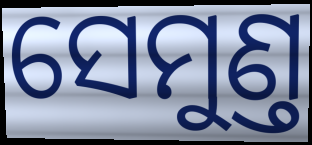
ସେମୁଣ୍ତ